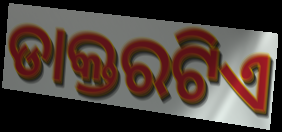
ଡାକ୍ତରଟିଏ